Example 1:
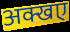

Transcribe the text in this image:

अक्खए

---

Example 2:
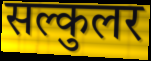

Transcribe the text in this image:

सल्कुलर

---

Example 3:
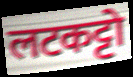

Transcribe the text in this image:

लटकट्टो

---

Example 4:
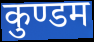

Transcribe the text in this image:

कुण्डम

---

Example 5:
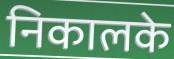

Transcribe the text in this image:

निकालके